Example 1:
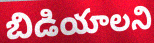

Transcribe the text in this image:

బిడియాలని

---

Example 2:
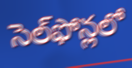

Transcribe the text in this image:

సెల్‌ఫోన్లలో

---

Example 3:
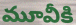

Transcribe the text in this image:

మూవీకి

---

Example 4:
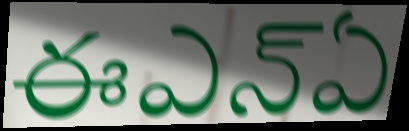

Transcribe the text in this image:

ఈఎన్ఏ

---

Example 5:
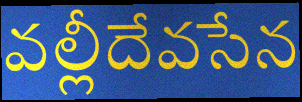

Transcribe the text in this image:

వల్లీదేవసేన